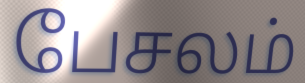
பேசலம்